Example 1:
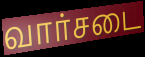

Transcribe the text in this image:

வார்சடை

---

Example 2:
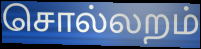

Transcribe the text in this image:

சொல்லறம்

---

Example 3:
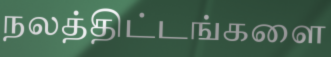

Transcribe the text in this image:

நலத்திட்டங்களை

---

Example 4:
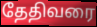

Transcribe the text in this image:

தேதிவரை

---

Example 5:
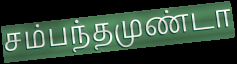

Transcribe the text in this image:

சம்பந்தமுண்டா